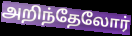
அறிந்தேலோர்